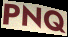
PNQ